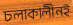
চলাকালীনই